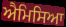
ਐਮਿਸਿਆ